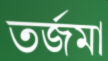
তর্জমা